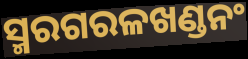
ସ୍ମରଗରଳଖଣ୍ଡନଂ